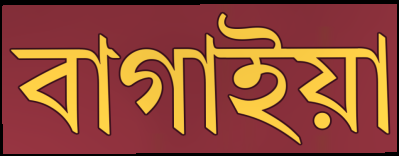
বাগাইয়া